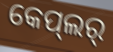
କେପ୍‌ଲର୍